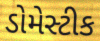
ડોમેસ્ટીક